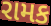
રામક